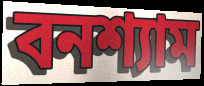
বনশ্যাম